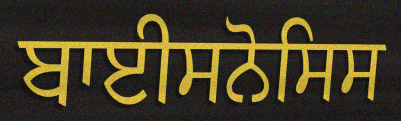
ਬਾਈਸਨੋਸਿਸ